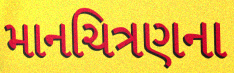
માનચિત્રણના